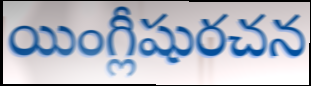
యింగ్లీషురచన